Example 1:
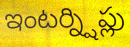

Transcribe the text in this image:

ఇంటర్న్షిప్లు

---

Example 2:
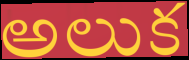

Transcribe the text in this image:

అలుక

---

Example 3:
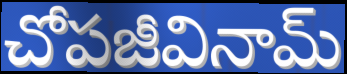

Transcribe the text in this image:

చోపజీవినామ్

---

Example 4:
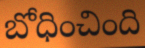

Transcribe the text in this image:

బోధించింది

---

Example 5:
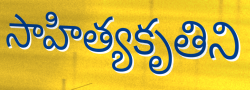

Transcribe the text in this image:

సాహిత్యకృతిని